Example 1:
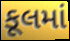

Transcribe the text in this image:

કૂલમાં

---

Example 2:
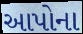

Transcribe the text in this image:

આપોના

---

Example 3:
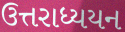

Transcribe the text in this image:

ઉત્તરાધ્યયન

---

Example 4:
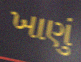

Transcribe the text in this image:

ખાણું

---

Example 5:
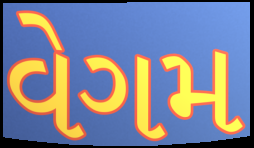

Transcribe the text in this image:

વેગમ